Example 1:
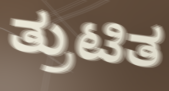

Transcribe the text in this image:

ತ್ರುಟಿತ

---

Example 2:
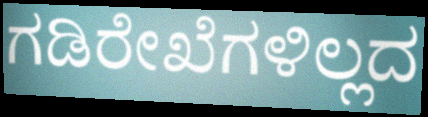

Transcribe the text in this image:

ಗಡಿರೇಖೆಗಳಿಲ್ಲದ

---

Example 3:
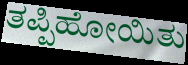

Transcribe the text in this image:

ತಪ್ಪಿಹೋಯಿತು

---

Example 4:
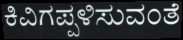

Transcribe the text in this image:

ಕಿವಿಗಪ್ಪಳಿಸುವಂತೆ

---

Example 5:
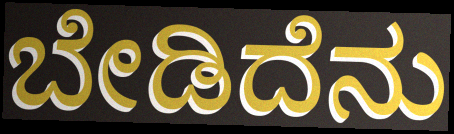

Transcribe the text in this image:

ಬೇಡಿದೆನು